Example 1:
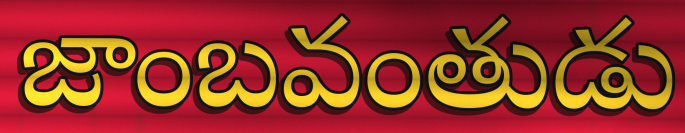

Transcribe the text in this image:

జాంబవంతుడు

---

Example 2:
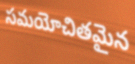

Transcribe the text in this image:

సమయోచితమైన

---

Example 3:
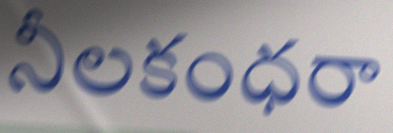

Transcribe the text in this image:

నీలకంధరా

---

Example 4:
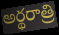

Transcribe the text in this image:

అర్థరాత్రి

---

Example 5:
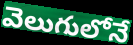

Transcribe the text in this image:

వెలుగులోనే